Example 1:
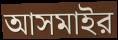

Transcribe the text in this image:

আসমাইর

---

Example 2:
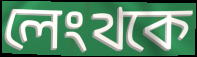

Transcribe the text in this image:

লেংথকে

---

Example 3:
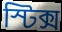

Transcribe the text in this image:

স্টিক্স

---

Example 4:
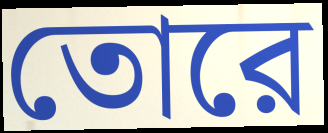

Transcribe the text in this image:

তোরে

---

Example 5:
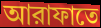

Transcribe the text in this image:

আরাফাতে